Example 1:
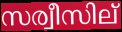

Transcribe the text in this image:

സര്വീസില്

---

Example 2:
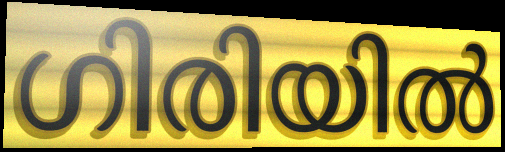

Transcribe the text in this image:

ഗിരിയിൽ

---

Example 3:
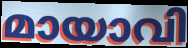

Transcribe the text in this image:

മായാവി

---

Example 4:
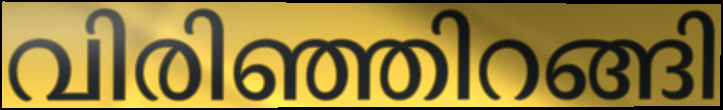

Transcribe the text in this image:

വിരിഞ്ഞിറങ്ങി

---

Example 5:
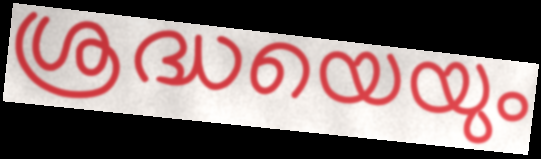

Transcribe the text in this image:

ശ്രദ്ധയെയും